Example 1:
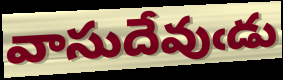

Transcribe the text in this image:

వాసుదేవుఁడు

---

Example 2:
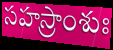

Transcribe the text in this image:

సహస్రాంశుః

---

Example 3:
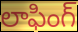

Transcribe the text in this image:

లాఫింగ్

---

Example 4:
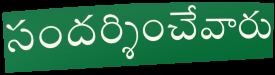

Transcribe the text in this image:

సందర్శించేవారు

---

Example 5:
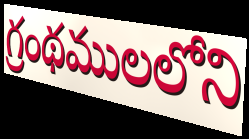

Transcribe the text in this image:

గ్రంథములలోని